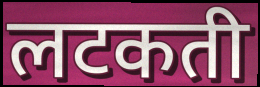
लटकती